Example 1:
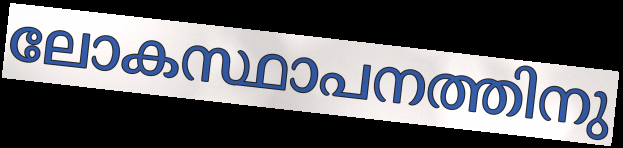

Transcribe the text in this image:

ലോകസ്ഥാപനത്തിനു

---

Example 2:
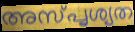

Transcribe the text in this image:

അസ്പൃശ്യത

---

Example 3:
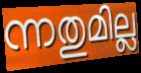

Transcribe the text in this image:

ന്നതുമില്ല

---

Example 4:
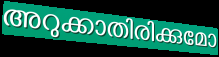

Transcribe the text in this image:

അറുക്കാതിരിക്കുമോ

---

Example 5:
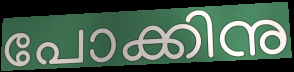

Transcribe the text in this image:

പോക്കിനു